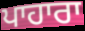
ਪਾਹਾਰਾ